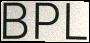
BPL